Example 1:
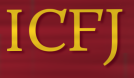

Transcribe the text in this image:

ICFJ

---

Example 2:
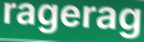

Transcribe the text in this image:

ragerag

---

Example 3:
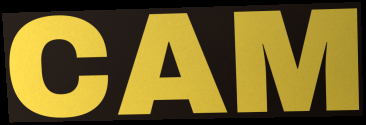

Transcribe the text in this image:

CAM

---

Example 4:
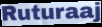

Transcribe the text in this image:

Ruturaaj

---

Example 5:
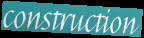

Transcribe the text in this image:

construction